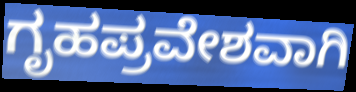
ಗೃಹಪ್ರವೇಶವಾಗಿ